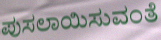
ಪುಸಲಾಯಿಸುವಂತೆ